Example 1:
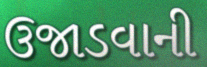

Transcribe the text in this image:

ઉજાડવાની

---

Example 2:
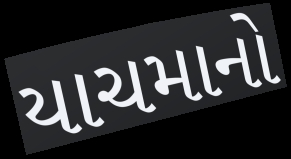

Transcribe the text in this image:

યાચમાનો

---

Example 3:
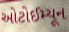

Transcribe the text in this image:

ઓટોઈમ્યૂન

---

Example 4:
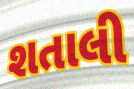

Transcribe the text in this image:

શતાલી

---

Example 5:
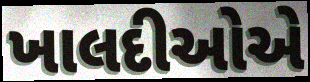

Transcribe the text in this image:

ખાલદીઓએ